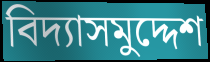
বিদ্যাসমুদ্দেশ